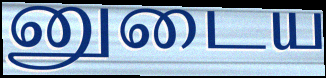
னுடைய